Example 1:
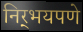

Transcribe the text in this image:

निर्भयपणे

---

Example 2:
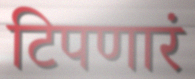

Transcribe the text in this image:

टिपणारं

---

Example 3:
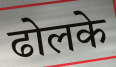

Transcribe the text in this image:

ढोलके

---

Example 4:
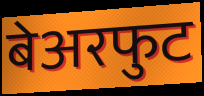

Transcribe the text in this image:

बेअरफुट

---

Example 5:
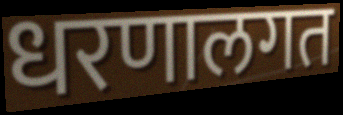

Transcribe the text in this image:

धरणालगत